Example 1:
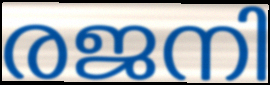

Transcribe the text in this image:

രജനി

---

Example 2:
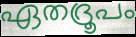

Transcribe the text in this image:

ഏതദ്രൂപം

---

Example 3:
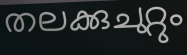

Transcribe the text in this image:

തലക്കുചുറ്റും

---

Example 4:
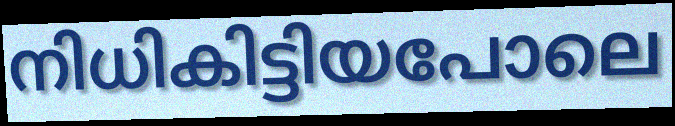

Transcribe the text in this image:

നിധികിട്ടിയപോലെ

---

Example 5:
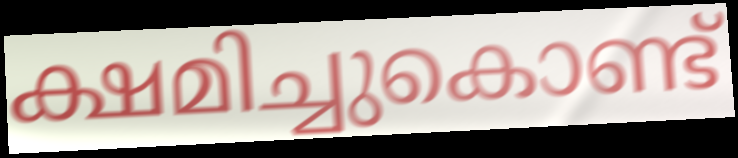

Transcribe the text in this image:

ക്ഷമിച്ചുകൊണ്ട്